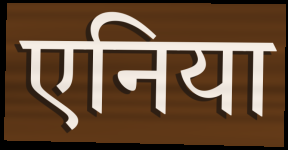
एनिया